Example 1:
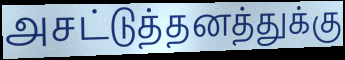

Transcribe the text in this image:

அசட்டுத்தனத்துக்கு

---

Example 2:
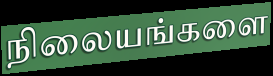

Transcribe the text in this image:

நிலையங்களை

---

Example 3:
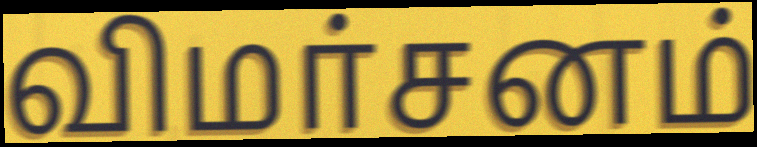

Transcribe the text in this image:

விமர்சனம்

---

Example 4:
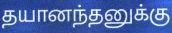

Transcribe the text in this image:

தயானந்தனுக்கு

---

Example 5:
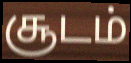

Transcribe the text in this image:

சூடம்